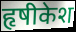
हृषीकेश